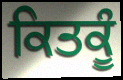
ਕਿਤਕੂੰ